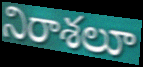
నిరాశలూ